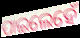
ପାଇଲେହେଁ